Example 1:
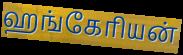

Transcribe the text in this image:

ஹங்கேரியன்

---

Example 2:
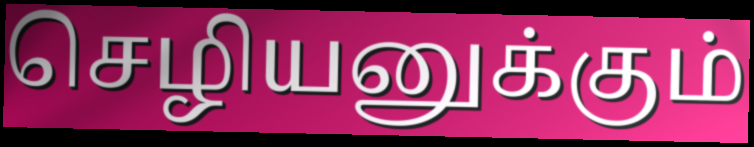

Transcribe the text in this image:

செழியனுக்கும்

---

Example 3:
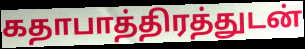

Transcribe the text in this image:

கதாபாத்திரத்துடன்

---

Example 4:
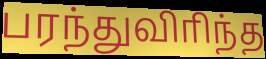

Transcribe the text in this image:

பரந்துவிரிந்த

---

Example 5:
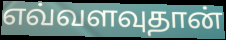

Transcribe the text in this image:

எவ்வளவுதான்